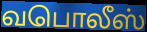
வபொலீஸ்